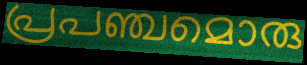
പ്രപഞ്ചമൊരു